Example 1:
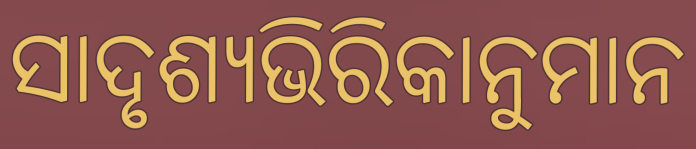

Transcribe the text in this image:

ସାଦୃଶ୍ଯଭିରିକାନୁମାନ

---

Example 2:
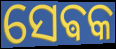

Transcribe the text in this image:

ସେଵକ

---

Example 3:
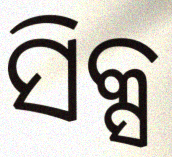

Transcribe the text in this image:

ସିକ୍ସ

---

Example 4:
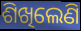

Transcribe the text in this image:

ଶିଖିଲେଣି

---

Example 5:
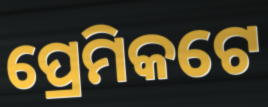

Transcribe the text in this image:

ପ୍ରେମିକଟେ